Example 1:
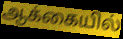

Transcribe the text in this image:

ஆக்கையில்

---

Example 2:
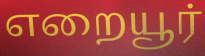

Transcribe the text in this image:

எறையூர்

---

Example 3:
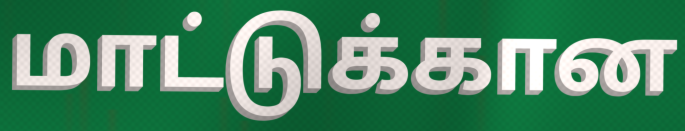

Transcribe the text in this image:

மாட்டுக்கான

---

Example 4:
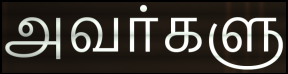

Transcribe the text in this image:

அவர்களு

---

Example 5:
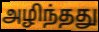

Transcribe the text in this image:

அழிந்தது